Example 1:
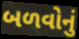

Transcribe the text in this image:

બળવોનું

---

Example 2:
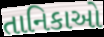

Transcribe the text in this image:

તાનિકાઓ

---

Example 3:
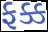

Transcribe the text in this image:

ફક્ક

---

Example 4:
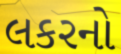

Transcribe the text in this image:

લકરનો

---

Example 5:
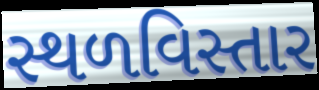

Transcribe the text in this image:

સ્થળવિસ્તાર